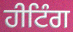
ਹੀਟਿੰਗ